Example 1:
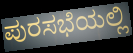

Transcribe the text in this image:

ಪುರಸಭೆಯಲ್ಲಿ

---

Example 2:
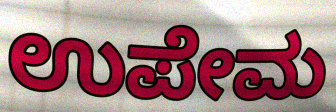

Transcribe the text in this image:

ಉಪೇಮ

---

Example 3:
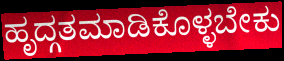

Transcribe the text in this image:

ಹೃದ್ಗತಮಾಡಿಕೊಳ್ಳಬೇಕು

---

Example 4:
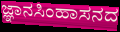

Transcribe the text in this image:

ಜ್ಞಾನಸಿಂಹಾಸನದ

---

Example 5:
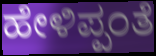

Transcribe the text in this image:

ಹೇಳಿಪ್ಪಂತೆ